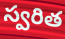
స్వరిత